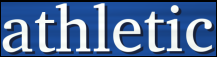
athletic